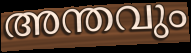
അന്തവും